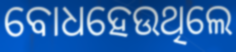
ବୋଧହେଉଥିଲେ